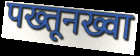
पख्तूनख्वा